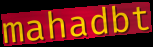
mahadbt